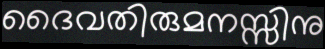
ദൈവതിരുമനസ്സിനു